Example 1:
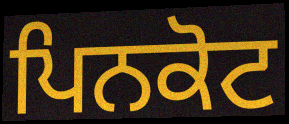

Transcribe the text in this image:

ਪਿਨਕੋਟ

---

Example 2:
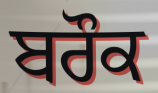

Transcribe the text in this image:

ਬਰੌਕ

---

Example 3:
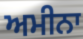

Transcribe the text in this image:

ਅਮੀਨਾ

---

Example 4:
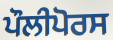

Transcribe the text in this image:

ਪੌਲੀਪੋਰਸ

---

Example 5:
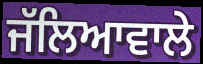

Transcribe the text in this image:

ਜੱਲਿਆਵਾਲੇ